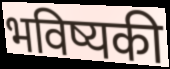
भविष्यकी